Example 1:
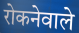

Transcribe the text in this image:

रोकनेवाले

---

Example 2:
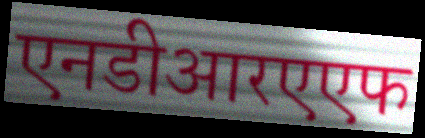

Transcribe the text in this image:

एनडीआरएएफ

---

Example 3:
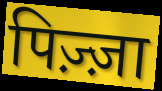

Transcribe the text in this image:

पिज़्ज़ा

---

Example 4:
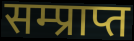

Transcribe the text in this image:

सम्प्राप्त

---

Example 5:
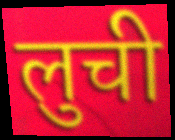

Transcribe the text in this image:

लुची